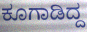
ಕೂಗಾಡಿದ್ದ